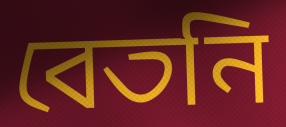
বেতনি